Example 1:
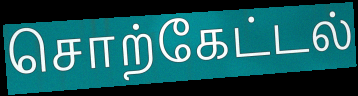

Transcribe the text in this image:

சொற்கேட்டல்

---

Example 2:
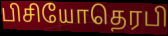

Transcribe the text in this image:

பிசியோதெரபி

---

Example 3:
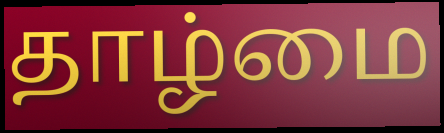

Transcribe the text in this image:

தாழ்மை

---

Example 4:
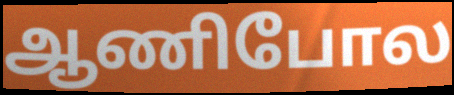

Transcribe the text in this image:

ஆணிபோல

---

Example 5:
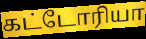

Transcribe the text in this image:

கட்டோரியா